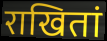
राखितां